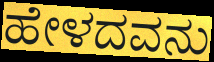
ಹೇಳದವನು